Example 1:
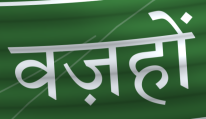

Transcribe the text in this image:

वज़हों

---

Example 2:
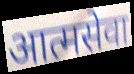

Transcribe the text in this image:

आत्मसेवा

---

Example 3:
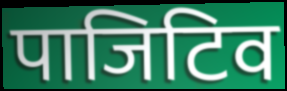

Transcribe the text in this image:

पाजिटिव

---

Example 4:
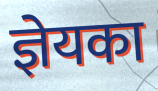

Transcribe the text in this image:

ज्ञेयका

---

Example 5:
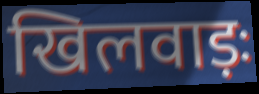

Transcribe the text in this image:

खिलवाड़ः